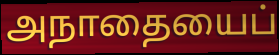
அநாதையைப்